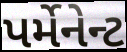
પર્મેનેન્ટ